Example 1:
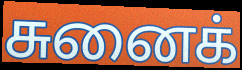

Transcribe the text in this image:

சுனைக்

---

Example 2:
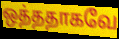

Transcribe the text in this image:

ஒத்ததாகவே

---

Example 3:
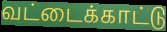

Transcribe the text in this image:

வட்டைக்காட்டு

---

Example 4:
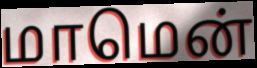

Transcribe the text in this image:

மாமென்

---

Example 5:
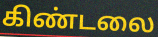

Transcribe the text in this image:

கிண்டலை